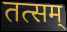
तत्सम्